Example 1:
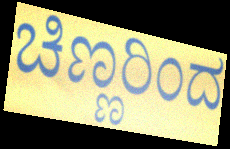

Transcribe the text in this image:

ಚಿಣ್ಣರಿಂದ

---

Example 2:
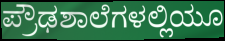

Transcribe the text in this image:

ಪ್ರೌಢಶಾಲೆಗಳಲ್ಲಿಯೂ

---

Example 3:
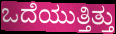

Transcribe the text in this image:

ಒದೆಯುತ್ತಿತ್ತು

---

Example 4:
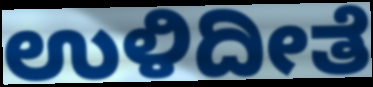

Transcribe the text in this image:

ಉಳಿದೀತೆ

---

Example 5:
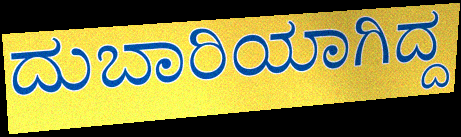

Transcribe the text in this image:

ದುಬಾರಿಯಾಗಿದ್ದ